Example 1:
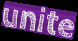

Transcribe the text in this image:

unite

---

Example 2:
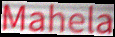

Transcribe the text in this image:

Mahela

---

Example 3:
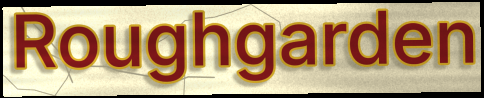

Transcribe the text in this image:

Roughgarden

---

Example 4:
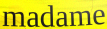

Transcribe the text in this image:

madame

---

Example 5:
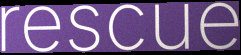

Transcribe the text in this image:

rescue